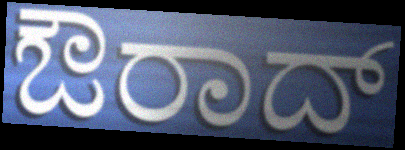
ಔರಾದ್